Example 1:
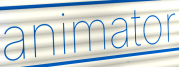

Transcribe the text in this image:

animator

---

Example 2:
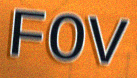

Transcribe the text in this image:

FOV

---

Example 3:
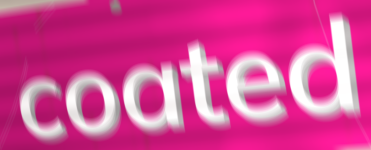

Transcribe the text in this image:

coated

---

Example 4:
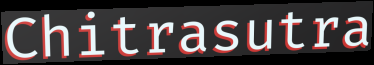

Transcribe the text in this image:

Chitrasutra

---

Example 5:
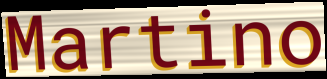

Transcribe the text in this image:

Martino